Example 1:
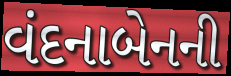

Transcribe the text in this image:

વંદનાબેનની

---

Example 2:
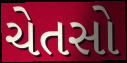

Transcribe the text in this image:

ચેતસો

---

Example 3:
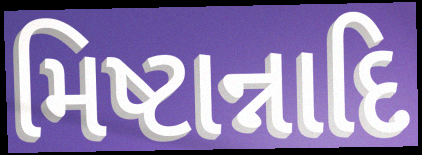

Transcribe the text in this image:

મિષ્ટાન્નાદિ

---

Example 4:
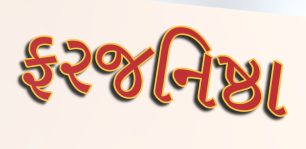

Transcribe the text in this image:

ફરજનિષ્ઠા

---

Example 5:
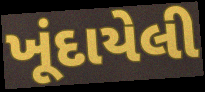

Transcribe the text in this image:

ખૂંદાયેલી